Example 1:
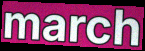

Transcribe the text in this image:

march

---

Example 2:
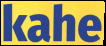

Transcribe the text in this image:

kahe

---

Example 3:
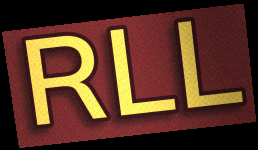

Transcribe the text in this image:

RLL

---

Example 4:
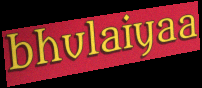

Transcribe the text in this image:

bhulaiyaa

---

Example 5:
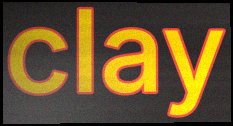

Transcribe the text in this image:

clay